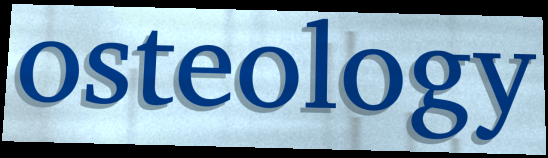
osteology